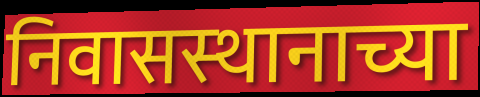
निवासस्थानाच्या